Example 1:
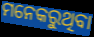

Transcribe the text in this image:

ମନେକରୁଥିବା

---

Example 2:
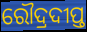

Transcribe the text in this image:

ରୌଦ୍ରଦୀପ୍ତ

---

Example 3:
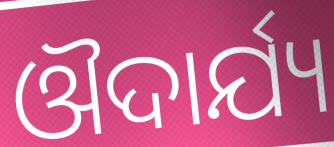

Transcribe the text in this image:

ଔଦାର୍ଯ୍ୟ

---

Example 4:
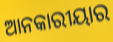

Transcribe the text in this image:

ଆନକାରୀୟାର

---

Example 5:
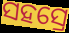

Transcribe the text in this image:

ସହସ୍ରେ